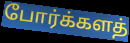
போர்க்களத்